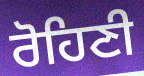
ਰੋਹਿਣੀ